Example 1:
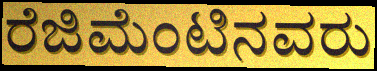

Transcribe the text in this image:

ರೆಜಿಮೆಂಟಿನವರು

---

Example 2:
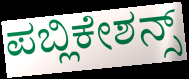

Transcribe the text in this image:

ಪಬ್ಲಿಕೇಶನ್ಸ್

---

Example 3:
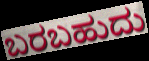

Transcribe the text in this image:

ಬರಬಹುದು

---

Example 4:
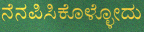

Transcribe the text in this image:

ನೆನಪಿಸಿಕೊಳ್ಳೋದು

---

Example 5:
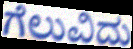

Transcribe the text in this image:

ಗೆಲುವಿದು